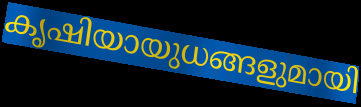
കൃഷിയായുധങ്ങളുമായി